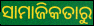
ସାମାଜିକତାରୁ